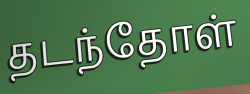
தடந்தோள்